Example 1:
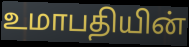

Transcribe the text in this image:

உமாபதியின்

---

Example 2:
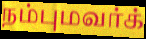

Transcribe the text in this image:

நம்புமவர்க்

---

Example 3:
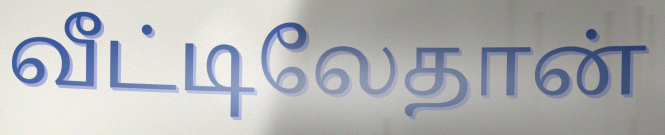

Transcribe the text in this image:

வீட்டிலேதான்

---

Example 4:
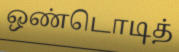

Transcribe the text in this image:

ஒண்டொடித்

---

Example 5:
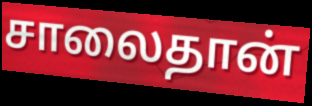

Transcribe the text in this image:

சாலைதான்